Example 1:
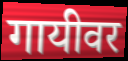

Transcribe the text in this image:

गायीवर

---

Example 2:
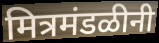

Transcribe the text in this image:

मित्रमंडळीनी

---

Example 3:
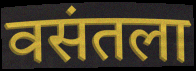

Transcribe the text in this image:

वसंतला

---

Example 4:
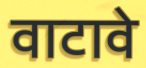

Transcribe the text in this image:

वाटावे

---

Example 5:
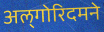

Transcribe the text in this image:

अल्गोरिदमने